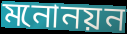
মনোনয়ন